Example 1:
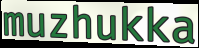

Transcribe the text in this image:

muzhukka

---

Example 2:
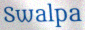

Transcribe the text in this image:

Swalpa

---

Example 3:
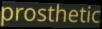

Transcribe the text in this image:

prosthetic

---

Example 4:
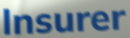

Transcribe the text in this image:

Insurer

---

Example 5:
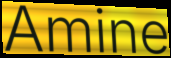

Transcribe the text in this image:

Amine